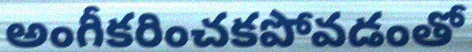
అంగీకరించకపోవడంతో